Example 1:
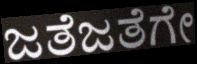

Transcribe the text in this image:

ಜತೆಜತೆಗೇ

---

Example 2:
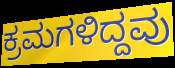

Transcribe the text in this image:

ಕ್ರಮಗಳಿದ್ದವು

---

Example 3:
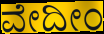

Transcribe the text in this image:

ವೇದೀಂ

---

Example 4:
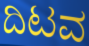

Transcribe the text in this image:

ದಿಟವ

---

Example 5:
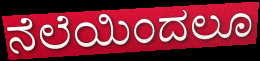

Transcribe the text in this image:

ನೆಲೆಯಿಂದಲೂ